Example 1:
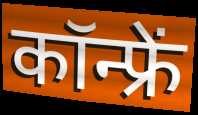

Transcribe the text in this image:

कॉन्फ्रें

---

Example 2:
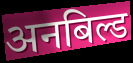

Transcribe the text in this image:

अनबिल्ड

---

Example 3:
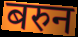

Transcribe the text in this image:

बरुन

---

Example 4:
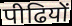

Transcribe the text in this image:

पीढियों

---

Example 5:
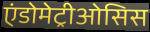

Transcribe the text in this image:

एंडोमेट्रीओसिस